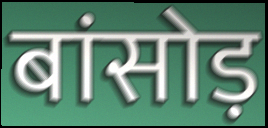
बांसोड़